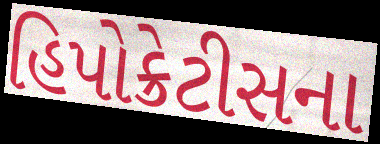
હિપોક્રેટીસના